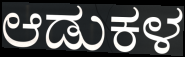
ಆಡುಕಳ